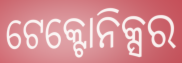
ଟେକ୍ଟୋନିକ୍ସର